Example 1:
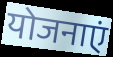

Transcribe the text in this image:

योजनाएं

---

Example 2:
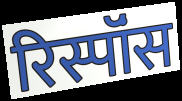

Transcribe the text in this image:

रिस्पॉंस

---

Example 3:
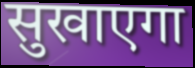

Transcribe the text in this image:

सुखाएगा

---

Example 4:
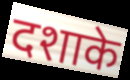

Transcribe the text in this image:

दशाके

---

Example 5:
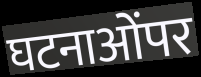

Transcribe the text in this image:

घटनाओंपर